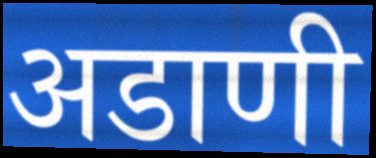
अडाणी